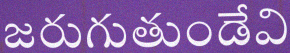
జరుగుతుండేవి